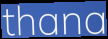
thana